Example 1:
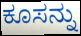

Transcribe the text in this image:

ಕೂಸನ್ನು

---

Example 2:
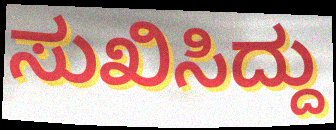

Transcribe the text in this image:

ಸುಖಿಸಿದ್ದು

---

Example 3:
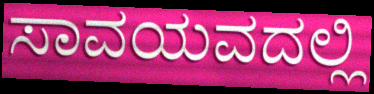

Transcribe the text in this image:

ಸಾವಯವದಲ್ಲಿ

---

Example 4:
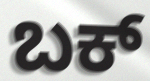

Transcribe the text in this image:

ಬಕ್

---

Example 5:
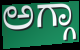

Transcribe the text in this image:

ಅಗ್ಗಾ